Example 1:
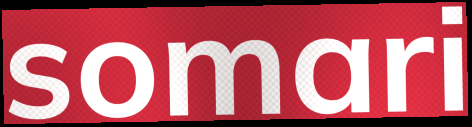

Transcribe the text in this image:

somari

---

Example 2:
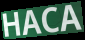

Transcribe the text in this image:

HACA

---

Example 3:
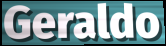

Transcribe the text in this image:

Geraldo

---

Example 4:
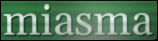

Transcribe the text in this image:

miasma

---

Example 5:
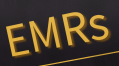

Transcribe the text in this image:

EMRs